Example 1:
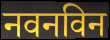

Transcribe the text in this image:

नवनविन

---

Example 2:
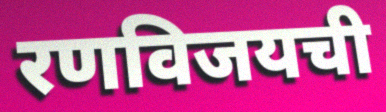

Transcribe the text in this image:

रणविजयची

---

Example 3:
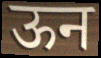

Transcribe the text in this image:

ऊन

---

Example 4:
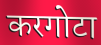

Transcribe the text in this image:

करगोटा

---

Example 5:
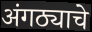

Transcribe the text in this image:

अंगठ्याचे